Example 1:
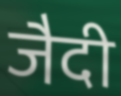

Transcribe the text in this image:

जैदी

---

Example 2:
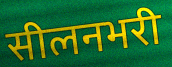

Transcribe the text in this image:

सीलनभरी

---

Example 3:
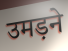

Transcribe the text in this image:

उमड़ने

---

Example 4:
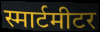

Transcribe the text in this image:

स्मार्टमीटर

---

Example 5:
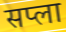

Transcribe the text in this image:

सप्ला